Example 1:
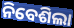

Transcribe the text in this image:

ନିବେଶିଲା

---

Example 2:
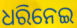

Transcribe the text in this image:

ଧରିନେଇ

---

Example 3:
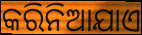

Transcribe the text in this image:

କରିନିଆଯାଏ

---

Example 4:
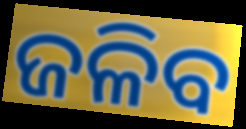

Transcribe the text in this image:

ଜଳିବ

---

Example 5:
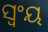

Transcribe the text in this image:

ସ୍ୱଂୟ